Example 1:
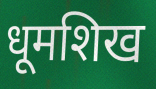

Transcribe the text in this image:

धूमशिख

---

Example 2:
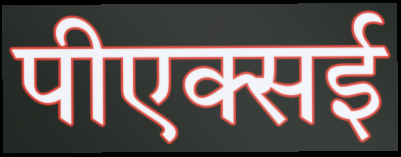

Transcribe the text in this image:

पीएक्सई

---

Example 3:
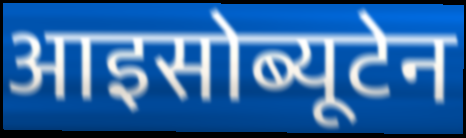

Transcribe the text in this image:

आइसोब्यूटेन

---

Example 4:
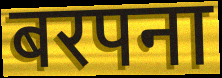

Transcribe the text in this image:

बरपना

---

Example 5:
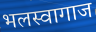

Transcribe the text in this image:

भलस्वागाज